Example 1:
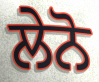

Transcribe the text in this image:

ਲੇਨੋ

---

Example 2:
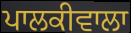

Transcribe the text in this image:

ਪਾਲਕੀਵਾਲਾ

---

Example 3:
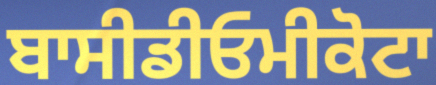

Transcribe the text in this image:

ਬਾਸੀਡੀਓਮੀਕੋਟਾ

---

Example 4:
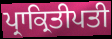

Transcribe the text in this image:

ਪ੍ਰਾਕ੍ਰਿਤੀਪਤੀ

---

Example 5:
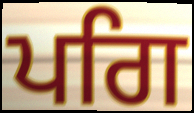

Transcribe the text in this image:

ਪਗਿ